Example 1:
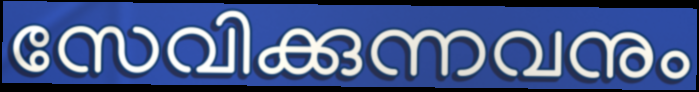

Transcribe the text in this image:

സേവിക്കുന്നവനും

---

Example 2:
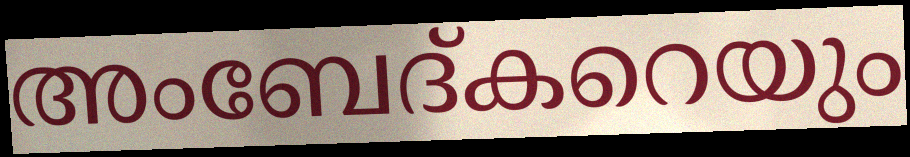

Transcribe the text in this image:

അംബേദ്കറെയും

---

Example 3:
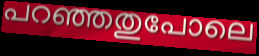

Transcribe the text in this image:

പറഞ്ഞതുപോലെ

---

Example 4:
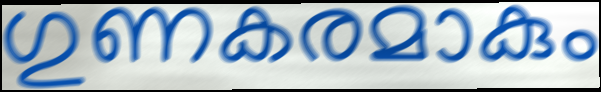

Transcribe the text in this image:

ഗുണകരമാകും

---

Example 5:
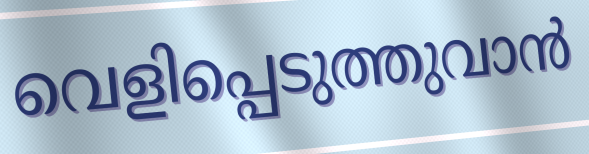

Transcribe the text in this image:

വെളിപ്പെടുത്തുവാൻ